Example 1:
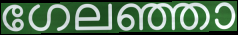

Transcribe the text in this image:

ഗേലഞ്ഞാ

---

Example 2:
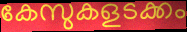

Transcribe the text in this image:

കേസുകളടക്കം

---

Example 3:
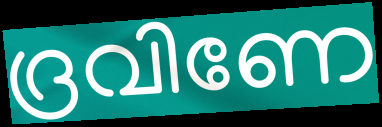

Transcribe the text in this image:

ദ്രവിണേ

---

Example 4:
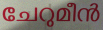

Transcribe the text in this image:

ചേറുമീൻ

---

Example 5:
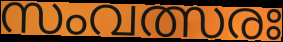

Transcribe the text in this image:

സംവത്സരഃ